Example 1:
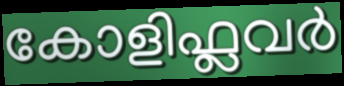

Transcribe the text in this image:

കോളിഫ്ലവർ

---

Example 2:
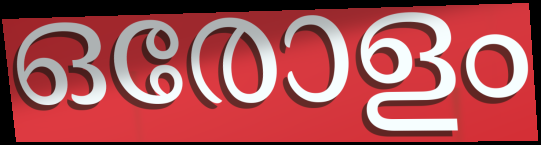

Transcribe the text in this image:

ഒരോളം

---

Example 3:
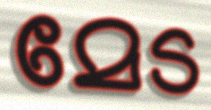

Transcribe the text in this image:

മേട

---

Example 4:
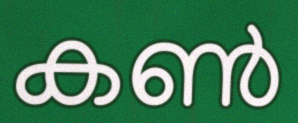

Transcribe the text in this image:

കൺ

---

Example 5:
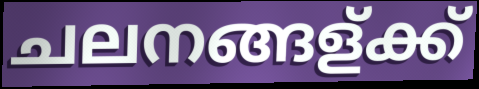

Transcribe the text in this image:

ചലനങ്ങള്ക്ക്